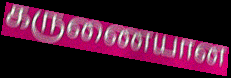
கருணையான